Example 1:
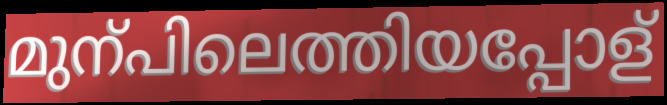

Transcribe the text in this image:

മുന്പിലെത്തിയപ്പോള്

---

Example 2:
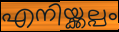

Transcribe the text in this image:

എനിയ്ക്കല്പം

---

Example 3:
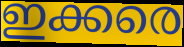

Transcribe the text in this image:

ഇക്കരെ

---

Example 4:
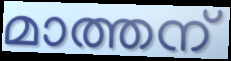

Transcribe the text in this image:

മാത്തന്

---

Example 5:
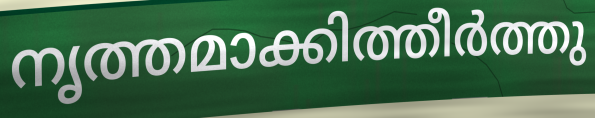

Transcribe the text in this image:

നൃത്തമാക്കിത്തീർത്തു